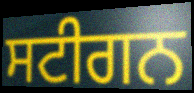
ਸਟੀਗਨ